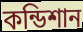
কন্ডিশান